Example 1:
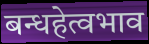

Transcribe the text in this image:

बन्धहेत्वभाव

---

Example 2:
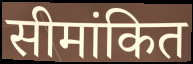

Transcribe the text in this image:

सीमांकित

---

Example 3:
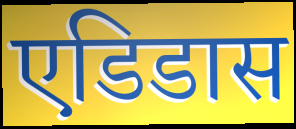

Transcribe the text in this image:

एडिडास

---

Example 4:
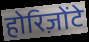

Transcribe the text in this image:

होरिज़ोंटे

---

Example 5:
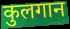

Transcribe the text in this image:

कुलगान